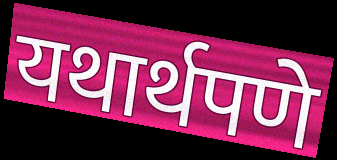
यथार्थपणे